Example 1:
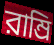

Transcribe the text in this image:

রাম্রি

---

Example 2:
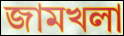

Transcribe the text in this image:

জামখলা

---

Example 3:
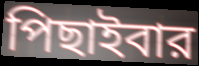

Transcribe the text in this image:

পিছাইবার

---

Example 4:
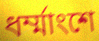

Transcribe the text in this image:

ধর্ম্মাংশে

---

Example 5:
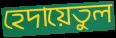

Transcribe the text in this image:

হেদায়েতুল